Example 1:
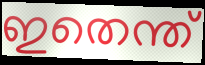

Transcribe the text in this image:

ഇതെന്ത്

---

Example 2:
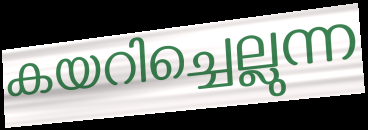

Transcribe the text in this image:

കയറിച്ചെല്ലുന്ന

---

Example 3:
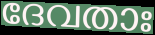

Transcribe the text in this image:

ദേവതാഃ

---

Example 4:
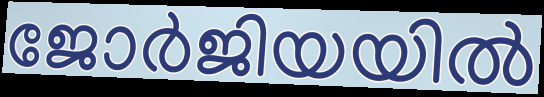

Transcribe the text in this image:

ജോർജിയയിൽ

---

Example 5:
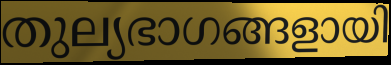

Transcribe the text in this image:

തുല്യഭാഗങ്ങളായി